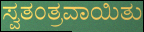
ಸ್ವತಂತ್ರವಾಯಿತು